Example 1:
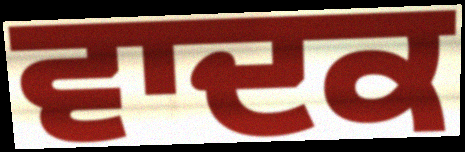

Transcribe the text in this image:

ਵਾਦਕ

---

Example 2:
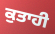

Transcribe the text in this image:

ਕੁਤਾਹੀ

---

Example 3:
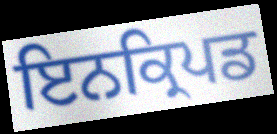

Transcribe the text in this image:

ਇਨਕ੍ਰਿਪਡ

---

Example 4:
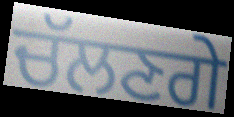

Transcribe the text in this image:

ਚੱਲਣਗੇ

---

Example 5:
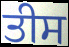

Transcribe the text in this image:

ਤੀਸ